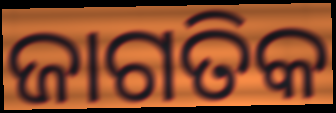
ଜାଗତିକ